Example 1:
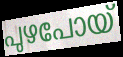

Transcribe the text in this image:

പുഴപോയ്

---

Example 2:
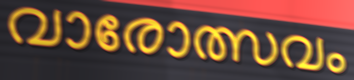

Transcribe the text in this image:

വാരോത്സവം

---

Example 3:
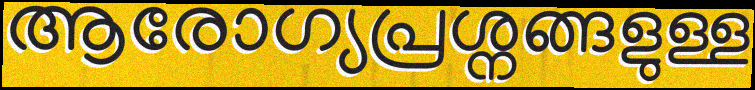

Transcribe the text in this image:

ആരോഗ്യപ്രശ്നങ്ങളുള്ള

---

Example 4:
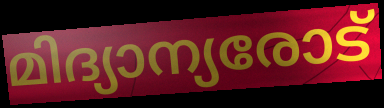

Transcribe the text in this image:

മിദ്യാന്യരോട്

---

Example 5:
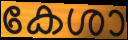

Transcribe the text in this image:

കേശാ